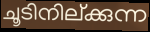
ചൂടിനില്ക്കുന്ന